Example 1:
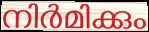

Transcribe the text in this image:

നിർമിക്കും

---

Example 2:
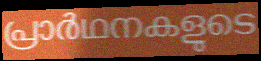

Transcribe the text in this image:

പ്രാർഥനകളുടെ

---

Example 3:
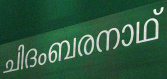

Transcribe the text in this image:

ചിദംബരനാഥ്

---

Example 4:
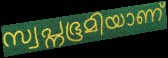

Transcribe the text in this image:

സ്വപ്നഭൂമിയാണ്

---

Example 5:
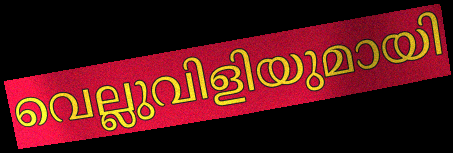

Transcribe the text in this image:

വെല്ലുവിളിയുമായി